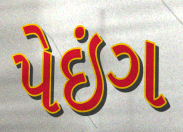
પેઇંગ